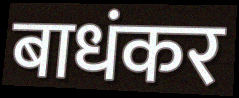
बाधंकर